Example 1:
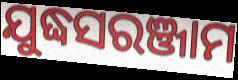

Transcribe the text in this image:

ଯୁଦ୍ଧସରଞ୍ଜାମ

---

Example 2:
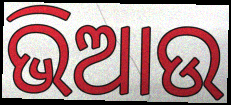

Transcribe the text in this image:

ଭିଆଉ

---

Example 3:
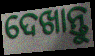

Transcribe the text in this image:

ଦେଖାନ୍ତୁ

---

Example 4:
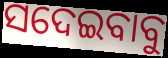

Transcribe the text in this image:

ସଦେଇବାବୁ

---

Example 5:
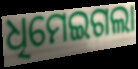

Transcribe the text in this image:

ଧିମେଇଗଲା